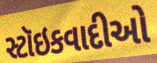
સ્ટૉઇકવાદીઓ